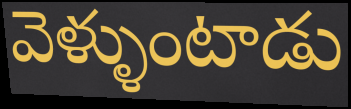
వెళ్ళుంటాడు